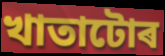
খাতাটোৰ